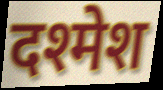
दश्मेश